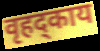
वृहद्काय